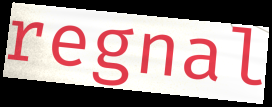
regnal